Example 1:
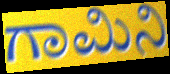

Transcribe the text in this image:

ಗಾಮಿನಿ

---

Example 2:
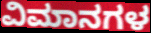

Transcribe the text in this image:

ವಿಮಾನಗಳ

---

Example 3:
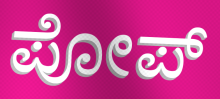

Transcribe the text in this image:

ಪೋಪ್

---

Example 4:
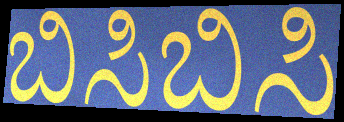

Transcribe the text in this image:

ಬಿಸಿಬಿಸಿ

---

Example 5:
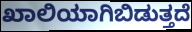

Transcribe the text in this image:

ಖಾಲಿಯಾಗಿಬಿಡುತ್ತದೆ